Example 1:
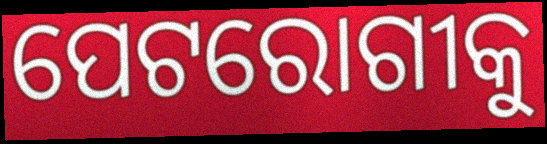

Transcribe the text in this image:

ପେଟରୋଗୀକୁ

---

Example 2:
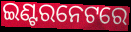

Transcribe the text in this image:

ଇଣ୍ଟରନେଟରେ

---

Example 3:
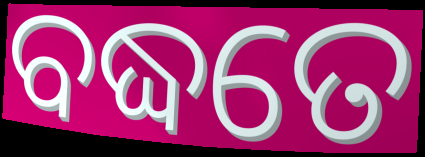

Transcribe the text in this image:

ବଦ୍ଧତେ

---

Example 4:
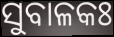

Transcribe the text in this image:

ସୁବାଳକଃ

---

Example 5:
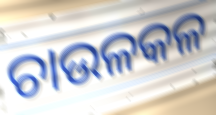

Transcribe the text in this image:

ଚାଉଳକଳ